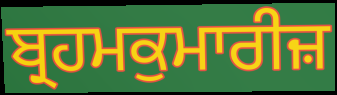
ਬ੍ਰਹਮਕੁਮਾਰੀਜ਼